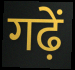
गढ़ें